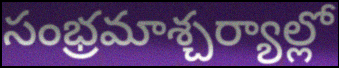
సంభ్రమాశ్చర్యాల్లో